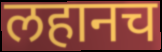
लहानच